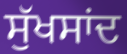
ਸੁੱਖਸਾਂਦ